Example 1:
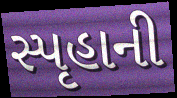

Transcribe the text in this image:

સ્પૃહાની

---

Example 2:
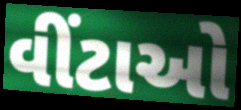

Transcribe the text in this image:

વીંટાઓ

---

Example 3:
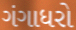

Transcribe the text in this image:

ગંગાધરો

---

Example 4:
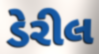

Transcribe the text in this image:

ડેરીલ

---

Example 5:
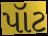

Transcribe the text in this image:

પૉટ